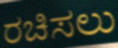
ರಚಿಸಲು